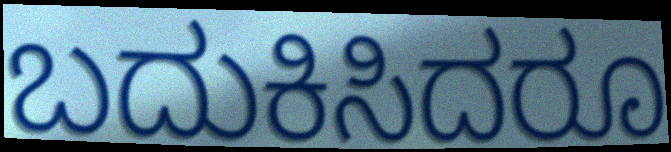
ಬದುಕಿಸಿದರೂ